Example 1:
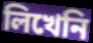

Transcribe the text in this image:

লিখেনি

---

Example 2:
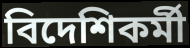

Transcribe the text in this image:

বিদেশিকর্মী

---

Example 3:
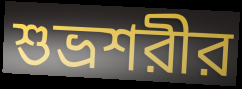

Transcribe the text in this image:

শুভ্রশরীর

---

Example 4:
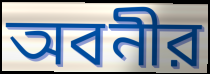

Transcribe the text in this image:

অবনীর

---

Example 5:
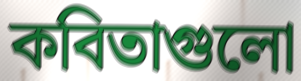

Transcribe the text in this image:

কবিতাগুলো